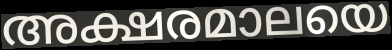
അക്ഷരമാലയെ